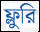
ফ্লুরি